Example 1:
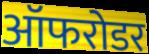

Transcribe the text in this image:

ऑफरोडर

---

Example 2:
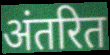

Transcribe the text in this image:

अंतरित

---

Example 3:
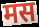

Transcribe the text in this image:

मस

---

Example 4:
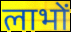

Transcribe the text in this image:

लाभों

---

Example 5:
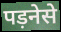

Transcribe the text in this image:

पड़नेसे